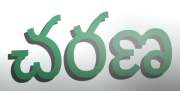
చరణ